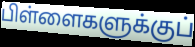
பிள்ளைகளுக்குப்